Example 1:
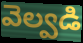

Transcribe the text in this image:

వెల్వడి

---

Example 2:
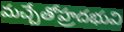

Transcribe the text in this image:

మచ్చేతోహ్రదభువి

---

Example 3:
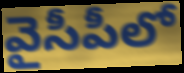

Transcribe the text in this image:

వైసీపీలో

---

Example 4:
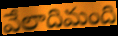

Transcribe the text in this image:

వేలాదిమంది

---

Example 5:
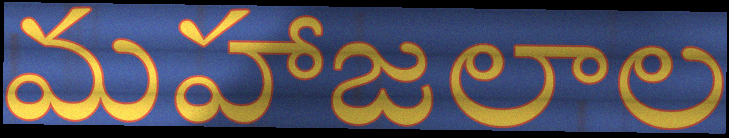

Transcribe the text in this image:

మహాజలాల